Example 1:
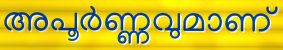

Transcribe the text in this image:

അപൂർണ്ണവുമാണ്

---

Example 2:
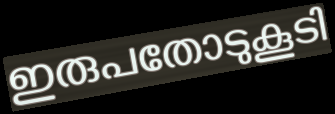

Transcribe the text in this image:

ഇരുപതോടുകൂടി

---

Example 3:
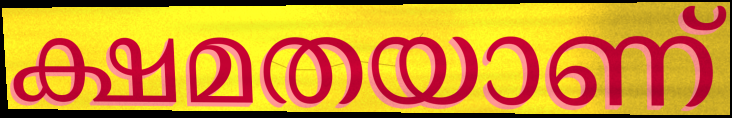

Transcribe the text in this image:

ക്ഷമതയാണ്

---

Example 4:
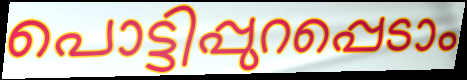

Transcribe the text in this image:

പൊട്ടിപ്പുറപ്പെടാം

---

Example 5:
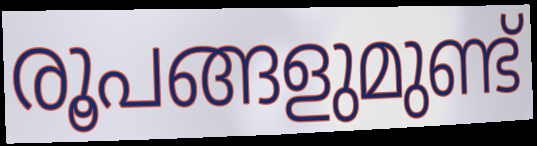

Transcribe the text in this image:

രൂപങ്ങളുമുണ്ട്